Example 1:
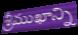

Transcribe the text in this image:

శ్రీముఖాన్ని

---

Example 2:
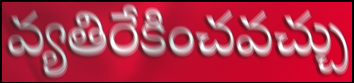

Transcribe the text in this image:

వ్యతిరేకించవచ్చు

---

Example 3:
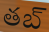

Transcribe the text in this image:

తబ్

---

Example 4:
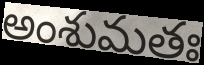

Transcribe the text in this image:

అంశుమతః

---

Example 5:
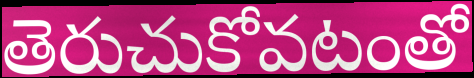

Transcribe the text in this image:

తెరుచుకోవటంతో